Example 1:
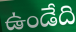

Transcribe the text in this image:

ఉండేది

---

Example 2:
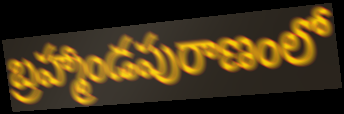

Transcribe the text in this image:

బ్రహ్మాండపురాణంలో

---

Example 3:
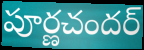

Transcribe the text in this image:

పూర్ణచందర్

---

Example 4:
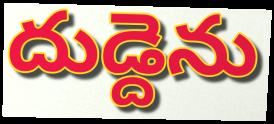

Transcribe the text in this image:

దుడ్దెను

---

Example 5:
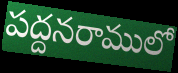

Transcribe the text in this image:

పద్దనరాములో